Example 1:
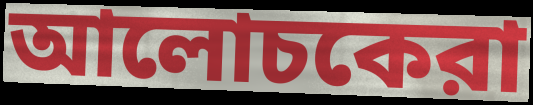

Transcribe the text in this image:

আলোচকেরা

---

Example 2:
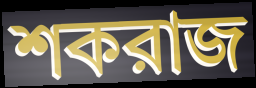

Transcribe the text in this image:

শকরাজ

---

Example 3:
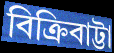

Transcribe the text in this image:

বিক্রিবাট্টা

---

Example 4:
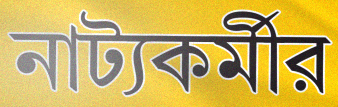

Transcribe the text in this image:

নাট্যকর্মীর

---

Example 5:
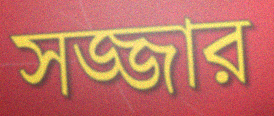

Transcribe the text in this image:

সজ্জার